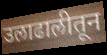
उलाढालीतून